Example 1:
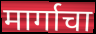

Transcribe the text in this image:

मार्गाचा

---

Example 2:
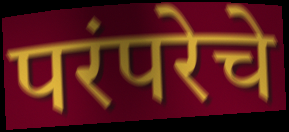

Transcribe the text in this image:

परंपरेचे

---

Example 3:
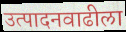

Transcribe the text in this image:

उत्पादनवाढीला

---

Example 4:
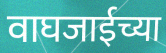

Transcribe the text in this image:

वाघजाईच्या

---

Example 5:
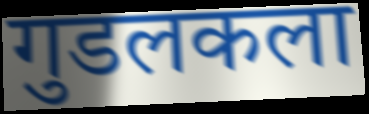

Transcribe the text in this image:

गुडलकला